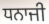
ਧਨਾਜੀ